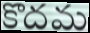
కొదమ